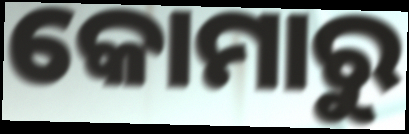
କୋମାରୁ